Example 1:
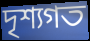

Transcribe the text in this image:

দৃশ্যগত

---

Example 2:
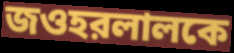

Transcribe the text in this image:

জওহরলালকে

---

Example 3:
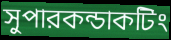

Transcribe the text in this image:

সুপারকন্ডাকটিং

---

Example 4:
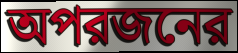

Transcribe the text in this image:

অপরজনের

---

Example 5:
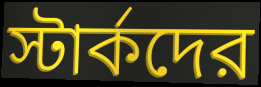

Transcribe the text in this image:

স্টার্কদের